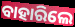
ବାହାରିଲେ